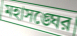
মহাসঙ্ঘের